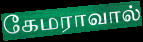
கேமராவால்